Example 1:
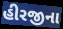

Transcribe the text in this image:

હીરજીના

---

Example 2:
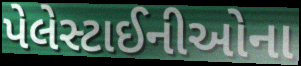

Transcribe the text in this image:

પેલેસ્ટાઈનીઓના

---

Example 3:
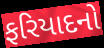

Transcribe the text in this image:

ફરિયાદનો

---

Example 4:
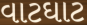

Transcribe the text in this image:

વાટઘાટ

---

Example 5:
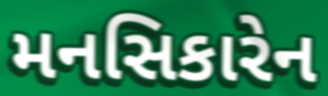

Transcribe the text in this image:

મનસિકારેન